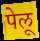
पेलू